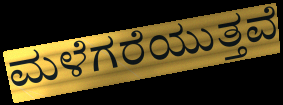
ಮಳೆಗರೆಯುತ್ತವೆ